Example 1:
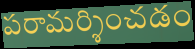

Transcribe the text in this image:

పరామర్శించడం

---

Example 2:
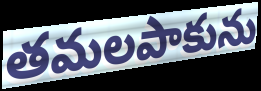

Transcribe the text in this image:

తమలపాకును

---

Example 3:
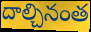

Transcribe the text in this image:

దాల్చినంత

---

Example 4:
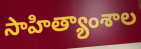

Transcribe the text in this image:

సాహిత్యాంశాల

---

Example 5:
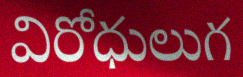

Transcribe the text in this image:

విరోధులుగ